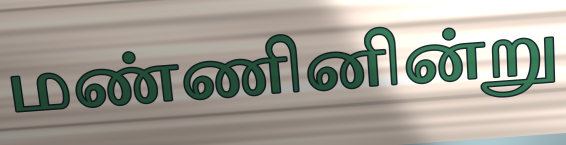
மண்ணினின்று